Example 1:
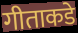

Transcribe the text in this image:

गीताकडे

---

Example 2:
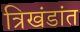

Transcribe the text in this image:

त्रिखंडांत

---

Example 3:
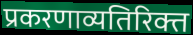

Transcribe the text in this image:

प्रकरणाव्यतिरिक्त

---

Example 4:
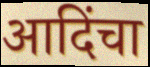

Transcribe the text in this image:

आदिंचा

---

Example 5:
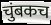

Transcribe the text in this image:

चुंबकच